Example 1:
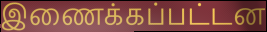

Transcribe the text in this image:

இணைக்கப்பட்டன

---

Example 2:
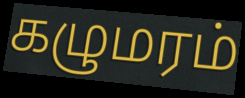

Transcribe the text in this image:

கழுமரம்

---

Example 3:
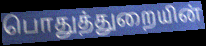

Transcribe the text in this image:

பொதுத்துறையின்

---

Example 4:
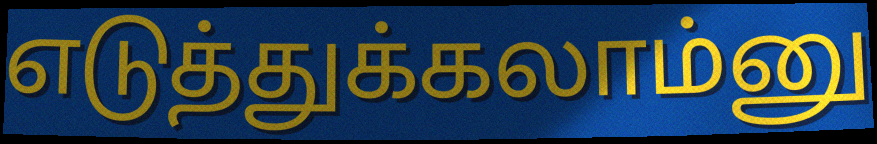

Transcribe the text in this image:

எடுத்துக்கலாம்னு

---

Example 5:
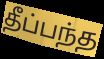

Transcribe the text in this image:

தீப்பந்த